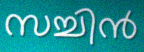
സച്ചിൻ